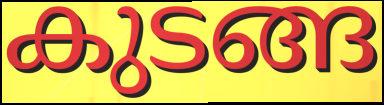
കുടങ്ങ